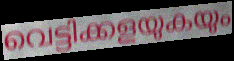
വെട്ടിക്കളയുകയും